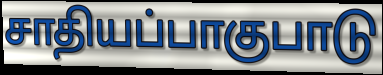
சாதியப்பாகுபாடு